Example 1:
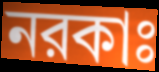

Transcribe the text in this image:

নরকাঃ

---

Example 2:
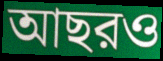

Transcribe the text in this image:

আছরও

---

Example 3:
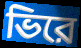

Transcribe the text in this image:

ভিরে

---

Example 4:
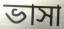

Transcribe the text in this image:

ভাসা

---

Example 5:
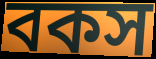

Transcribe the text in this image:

বকস